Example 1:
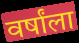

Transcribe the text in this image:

वर्षांला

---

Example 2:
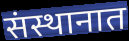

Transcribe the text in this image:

संस्थानात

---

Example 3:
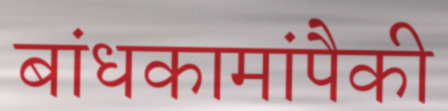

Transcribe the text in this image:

बांधकामांपैकी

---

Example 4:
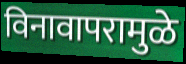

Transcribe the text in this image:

विनावापरामुळे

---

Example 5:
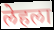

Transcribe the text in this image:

लेहला